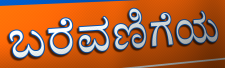
ಬರೆವಣಿಗೆಯ